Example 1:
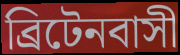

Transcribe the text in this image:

ব্রিটেনবাসী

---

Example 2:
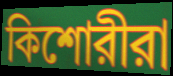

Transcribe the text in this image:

কিশোরীরা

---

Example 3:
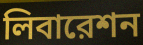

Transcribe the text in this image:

লিবারেশন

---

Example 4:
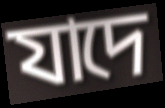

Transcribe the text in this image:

যাদে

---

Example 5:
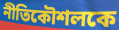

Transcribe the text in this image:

নীতিকৌশলকে